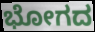
ಭೋಗದ